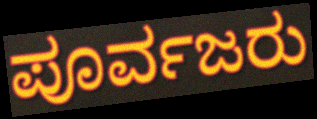
ಪೂರ್ವಜರು